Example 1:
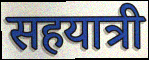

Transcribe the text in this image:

सहयात्री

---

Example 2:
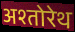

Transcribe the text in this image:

अश्तोरेथ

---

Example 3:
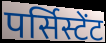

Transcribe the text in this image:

पर्सिस्टेंट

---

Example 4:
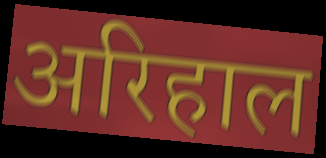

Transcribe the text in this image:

अरिहाल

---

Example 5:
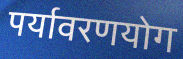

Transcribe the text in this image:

पर्यावरणयोग